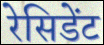
रेसिडेंट